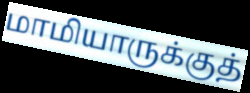
மாமியாருக்குத்